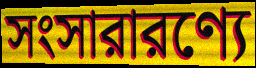
সংসারারণ্যে